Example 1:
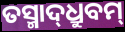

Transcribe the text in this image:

ତସ୍ମାଦ୍‌ଧ୍ରୁବମ୍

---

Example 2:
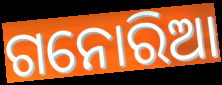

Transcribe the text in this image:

ଗନୋରିଆ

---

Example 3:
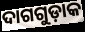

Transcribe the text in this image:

ଦାଗଗୁଡ଼ାକ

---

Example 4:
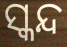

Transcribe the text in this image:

ସ୍କନ୍ଦ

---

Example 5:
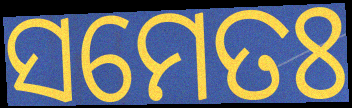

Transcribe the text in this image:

ସମେତଃ